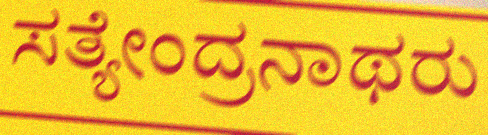
ಸತ್ಯೇಂದ್ರನಾಥರು